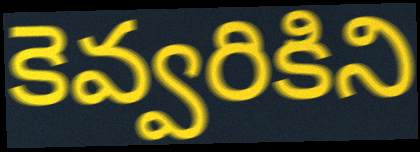
కెవ్వరికిని